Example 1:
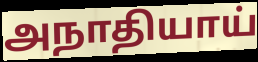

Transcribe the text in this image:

அநாதியாய்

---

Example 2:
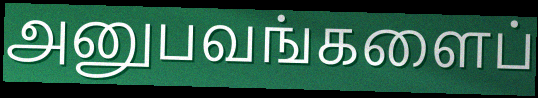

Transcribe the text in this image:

அனுபவங்களைப்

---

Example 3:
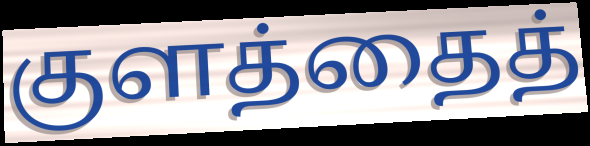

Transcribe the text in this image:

குளத்தைத்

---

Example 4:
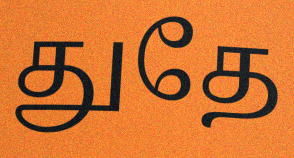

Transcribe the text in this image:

துதே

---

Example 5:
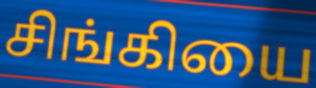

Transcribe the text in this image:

சிங்கியை